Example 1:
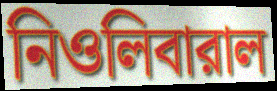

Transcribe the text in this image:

নিওলিবারাল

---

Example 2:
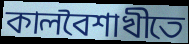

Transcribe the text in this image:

কালবৈশাখীতে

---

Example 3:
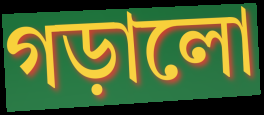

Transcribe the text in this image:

গড়ালো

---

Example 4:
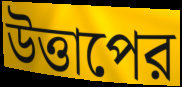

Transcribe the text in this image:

উত্তাপের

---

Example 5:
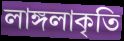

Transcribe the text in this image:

লাঙ্গলাকৃতি